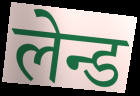
लेन्ड